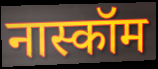
नास्कॉम